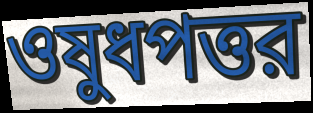
ওষুধপত্তর